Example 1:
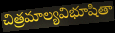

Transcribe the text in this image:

చిత్రమాల్యవిభూషితా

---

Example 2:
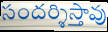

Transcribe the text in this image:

సందర్శిస్తావు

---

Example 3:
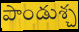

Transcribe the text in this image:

పాండుశ్చ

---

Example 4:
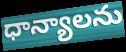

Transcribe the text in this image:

ధాన్యాలను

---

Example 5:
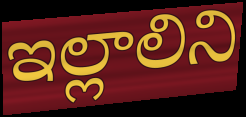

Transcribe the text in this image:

ఇల్లాలిని